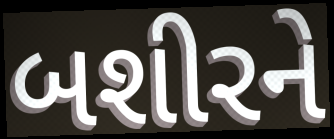
બશીરને